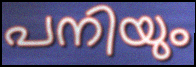
പനിയും